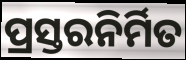
ପ୍ରସ୍ତରନିର୍ମିତ